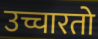
उच्चारतो